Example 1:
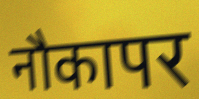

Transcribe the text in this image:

नौकापर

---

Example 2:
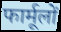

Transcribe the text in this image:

फार्मूलों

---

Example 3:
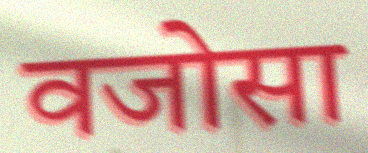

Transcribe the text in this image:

वजोसा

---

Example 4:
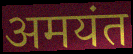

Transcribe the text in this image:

अमयंत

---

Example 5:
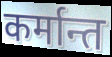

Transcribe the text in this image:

कर्मान्त